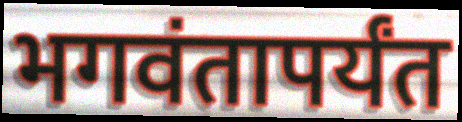
भगवंतापर्यंत